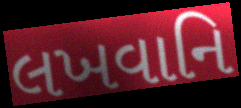
લખવાનિ